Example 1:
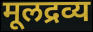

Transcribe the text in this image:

मूलद्रव्य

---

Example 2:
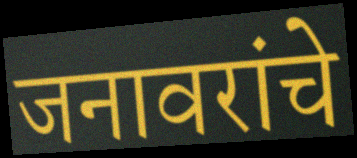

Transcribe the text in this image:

जनावरांचे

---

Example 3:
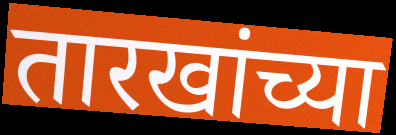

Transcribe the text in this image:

तारखांच्या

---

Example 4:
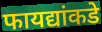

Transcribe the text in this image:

फायद्यांकडे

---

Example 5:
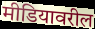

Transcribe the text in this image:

मीडियावरील